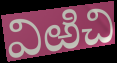
విఱిచి